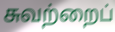
சுவற்றைப்